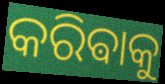
କରିଵାକୁ